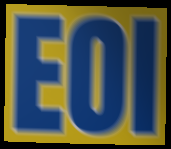
EOI